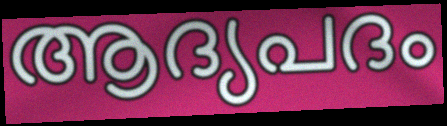
ആദ്യപദം